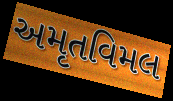
અમૃતવિમલ